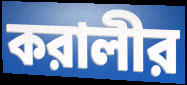
করালীর